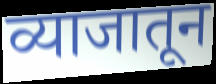
व्याजातून